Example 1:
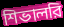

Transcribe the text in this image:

শিভালরি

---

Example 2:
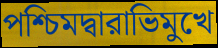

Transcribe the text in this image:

পশ্চিমদ্বারাভিমুখে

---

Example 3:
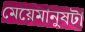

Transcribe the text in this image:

মেয়েমানুষটা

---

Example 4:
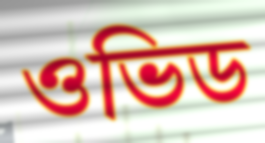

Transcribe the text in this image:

ওভিড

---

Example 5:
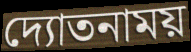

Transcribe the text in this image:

দ্যোতনাময়